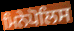
ਮਿਨੇਪੋਲਿਸ